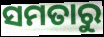
ସମତାରୁ